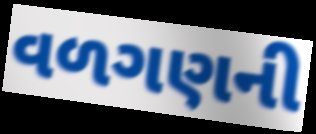
વળગણની